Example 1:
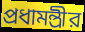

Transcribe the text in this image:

প্রধামন্ত্রীর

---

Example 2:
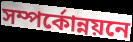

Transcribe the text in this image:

সম্পর্কোন্নয়নে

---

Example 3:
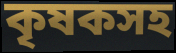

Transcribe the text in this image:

কৃষকসহ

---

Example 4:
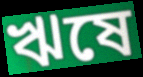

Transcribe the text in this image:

ঋষে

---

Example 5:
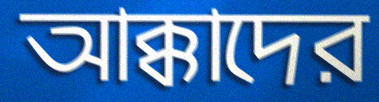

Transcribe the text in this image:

আক্কাদের